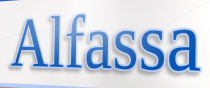
Alfassa